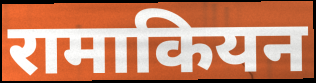
रामाकियन